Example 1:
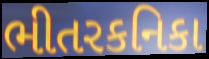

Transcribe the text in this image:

ભીતરકનિકા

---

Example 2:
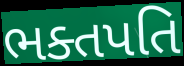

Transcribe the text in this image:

ભક્તપતિ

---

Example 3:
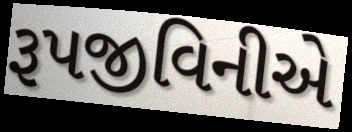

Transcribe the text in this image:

રૂપજીવિનીએ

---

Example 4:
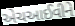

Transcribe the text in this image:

એચઆઈવીને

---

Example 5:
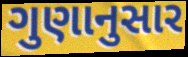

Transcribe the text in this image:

ગુણાનુસાર